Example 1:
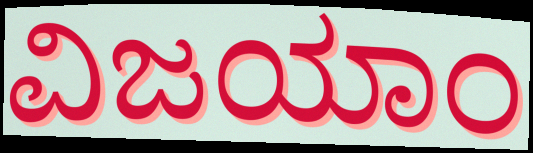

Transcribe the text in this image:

ವಿಜಯಾಂ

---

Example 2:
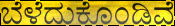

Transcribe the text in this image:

ಬೆಳೆದುಕೊಂಡಿವೆ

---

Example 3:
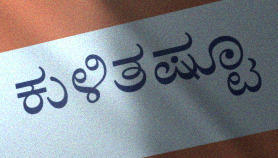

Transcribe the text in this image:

ಕುಳಿತಷ್ಟೂ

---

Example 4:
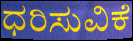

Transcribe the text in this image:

ಧರಿಸುವಿಕೆ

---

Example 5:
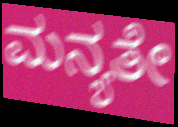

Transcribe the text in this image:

ಮನ್ಯತೇ